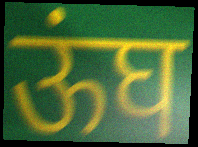
ऊंघ